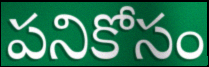
పనికోసం